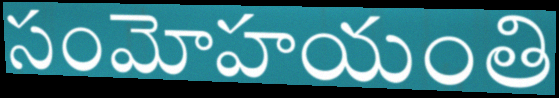
సంమోహయంతి